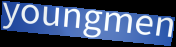
youngmen